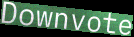
Downvote